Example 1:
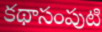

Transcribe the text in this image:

కథాసంపుటి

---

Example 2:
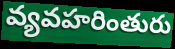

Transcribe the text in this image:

వ్యవహరింతురు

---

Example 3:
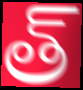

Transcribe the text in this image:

త్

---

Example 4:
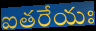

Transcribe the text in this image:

ఐతరేయః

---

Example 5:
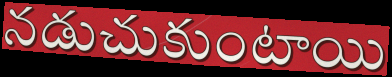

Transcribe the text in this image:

నడుచుకుంటాయి